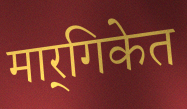
मार्गिकेत